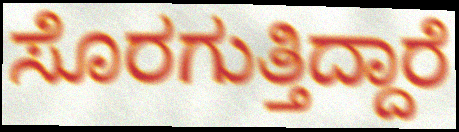
ಸೊರಗುತ್ತಿದ್ದಾರೆ